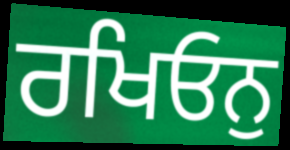
ਰਖਿਓਨੁ